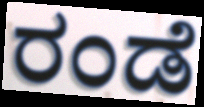
ರಂಡೆ